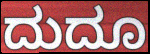
ದುದೂ